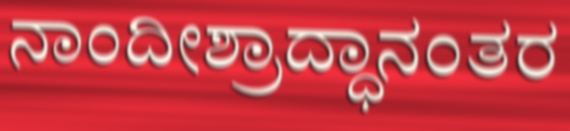
ನಾಂದೀಶ್ರಾದ್ಧಾನಂತರ